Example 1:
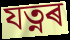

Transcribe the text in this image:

যত্নৰ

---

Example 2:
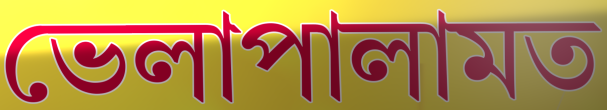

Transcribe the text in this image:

ভেলাপালামত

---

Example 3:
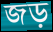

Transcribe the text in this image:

জড়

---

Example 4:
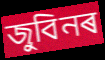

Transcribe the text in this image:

জুবিনৰ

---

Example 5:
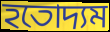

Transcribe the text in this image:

হতোদ্যম